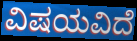
ವಿಷಯವಿದೆ